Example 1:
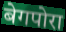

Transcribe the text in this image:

बेगपोरा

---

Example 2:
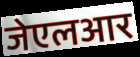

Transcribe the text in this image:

जेएलआर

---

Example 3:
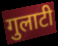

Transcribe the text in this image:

गुलाटी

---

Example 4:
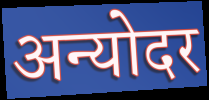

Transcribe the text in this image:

अन्योदर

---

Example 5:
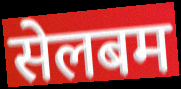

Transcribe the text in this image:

सेलबम